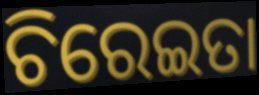
ଚିରେଇତା